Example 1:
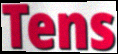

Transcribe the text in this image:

Tens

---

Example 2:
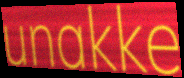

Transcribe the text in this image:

unakke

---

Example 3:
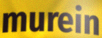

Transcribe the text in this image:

murein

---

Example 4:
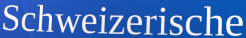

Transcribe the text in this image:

Schweizerische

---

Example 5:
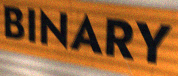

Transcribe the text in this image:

BINARY